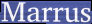
Marrus